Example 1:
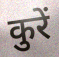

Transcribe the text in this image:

कुरें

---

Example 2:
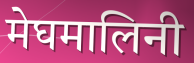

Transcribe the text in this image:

मेघमालिनी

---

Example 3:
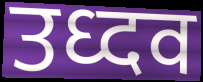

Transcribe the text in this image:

उध्दव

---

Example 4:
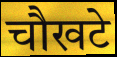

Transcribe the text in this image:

चौखटे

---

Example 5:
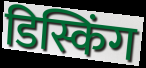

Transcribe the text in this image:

डिस्किंग